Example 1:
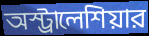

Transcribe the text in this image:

অস্ট্রালেশিয়ার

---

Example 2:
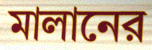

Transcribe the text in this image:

মালানের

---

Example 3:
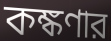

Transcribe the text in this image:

কঙ্কণার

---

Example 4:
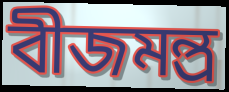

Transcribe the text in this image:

বীজমন্ত্র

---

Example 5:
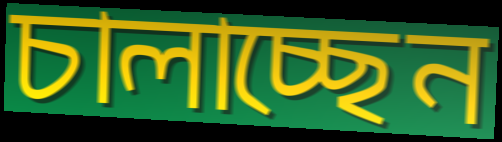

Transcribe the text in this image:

চালাচ্ছেন